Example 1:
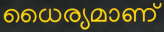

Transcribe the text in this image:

ധൈര്യമാണ്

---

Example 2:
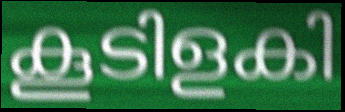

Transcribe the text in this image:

കൂടിളകി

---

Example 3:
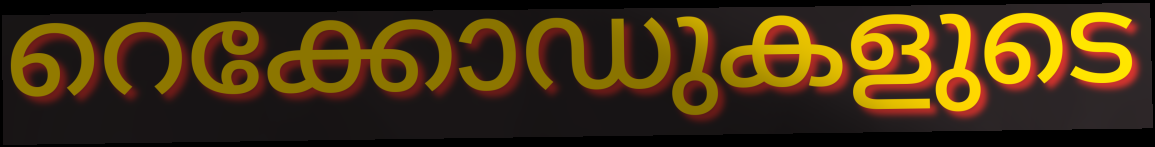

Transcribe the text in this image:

റെക്കോഡുകളുടെ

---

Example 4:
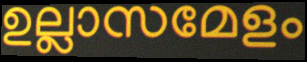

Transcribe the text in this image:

ഉല്ലാസമേളം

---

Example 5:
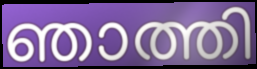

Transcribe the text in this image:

ഞാത്തി